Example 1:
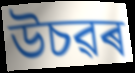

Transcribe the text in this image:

উচৱৰ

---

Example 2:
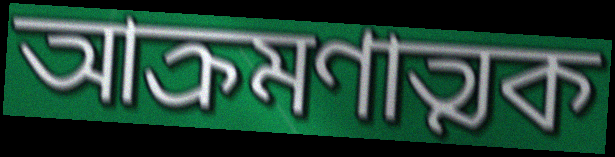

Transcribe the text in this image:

আক্ৰমণাত্মক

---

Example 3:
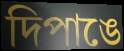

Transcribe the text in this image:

দিপাঙে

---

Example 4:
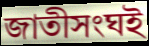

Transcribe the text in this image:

জাতীসংঘই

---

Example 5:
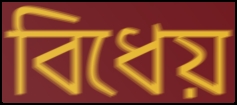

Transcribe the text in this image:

বিধেয়